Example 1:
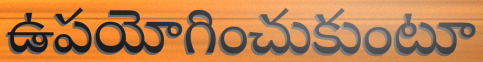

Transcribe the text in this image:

ఉపయోగించుకుంటూ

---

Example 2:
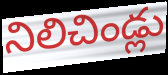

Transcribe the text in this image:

నిలిచిండ్లు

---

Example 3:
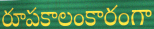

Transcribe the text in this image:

రూపకాలంకారంగా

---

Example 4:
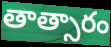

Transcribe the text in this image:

తాత్సారం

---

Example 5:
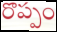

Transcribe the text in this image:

రొప్పం